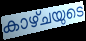
കാഴ്‌ചയുടെ